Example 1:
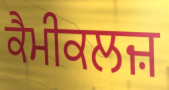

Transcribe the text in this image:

ਕੈਮੀਕਲਜ਼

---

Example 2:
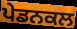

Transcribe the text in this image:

ਪੇਡਨਕਲ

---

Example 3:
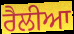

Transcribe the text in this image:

ਰੈਲੀਆ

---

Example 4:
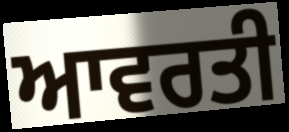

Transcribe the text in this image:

ਆਵਰਤੀ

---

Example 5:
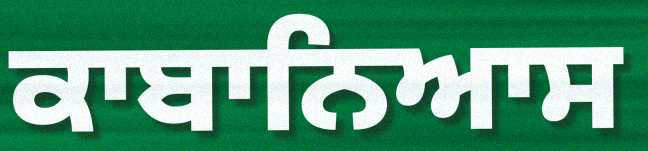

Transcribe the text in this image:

ਕਾਬਾਨਿਆਸ